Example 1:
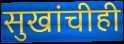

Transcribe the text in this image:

सुखांचीही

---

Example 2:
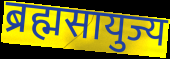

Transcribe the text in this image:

ब्रह्मसायुज्य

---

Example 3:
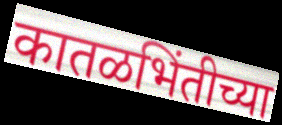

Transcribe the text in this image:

कातळभिंतीच्या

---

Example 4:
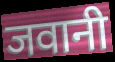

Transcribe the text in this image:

जवानी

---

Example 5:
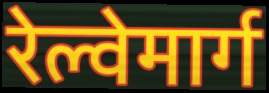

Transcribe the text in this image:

रेल्वेमार्ग